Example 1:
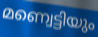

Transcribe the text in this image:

മണ്വെട്ടിയും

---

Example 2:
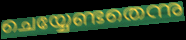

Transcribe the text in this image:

ചെയ്യേണ്ടതെന്നു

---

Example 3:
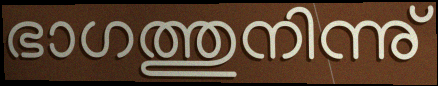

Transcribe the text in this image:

ഭാഗത്തുനിന്നു്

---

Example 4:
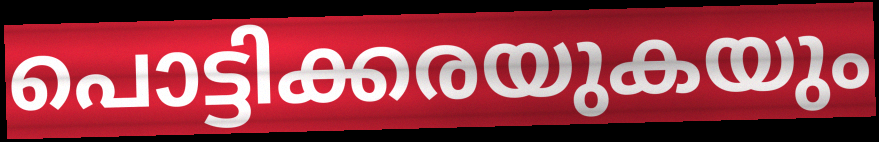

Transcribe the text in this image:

പൊട്ടിക്കരയുകയും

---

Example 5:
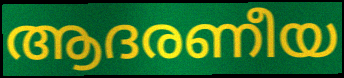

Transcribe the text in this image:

ആദരണീയ